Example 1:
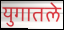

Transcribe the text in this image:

युगातले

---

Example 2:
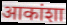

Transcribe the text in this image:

आकांशा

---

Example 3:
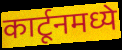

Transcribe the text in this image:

कार्टूनमध्ये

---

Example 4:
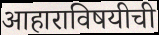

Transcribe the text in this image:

आहाराविषयीची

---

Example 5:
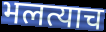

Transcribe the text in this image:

भलत्याच